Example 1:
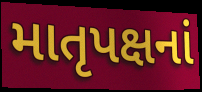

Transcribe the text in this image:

માતૃપક્ષનાં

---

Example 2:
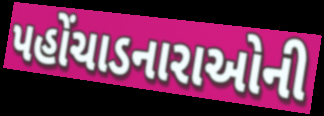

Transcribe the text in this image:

પહોંચાડનારાઓની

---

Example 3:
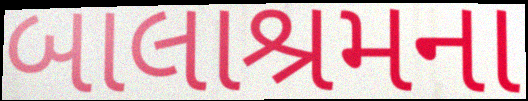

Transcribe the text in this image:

બાલાશ્રમના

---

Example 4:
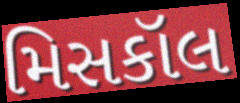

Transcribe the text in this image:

મિસકૉલ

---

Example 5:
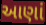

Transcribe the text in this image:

આણાં